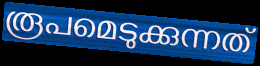
രൂപമെടുക്കുന്നത്